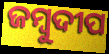
ଜମ୍ବୁଦୀପ